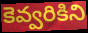
కెవ్వరికిని